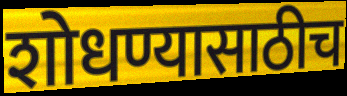
शोधण्यासाठीच